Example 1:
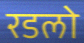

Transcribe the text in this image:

रडलो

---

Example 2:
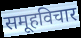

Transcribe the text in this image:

समूहविचार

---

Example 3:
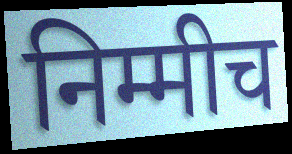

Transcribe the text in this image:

निम्मीच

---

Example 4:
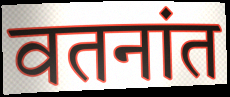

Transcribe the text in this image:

वतनांत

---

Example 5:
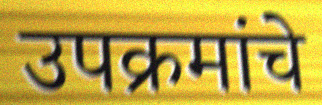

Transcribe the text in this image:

उपक्रमांचे